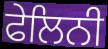
ਫੇਲਿਨੀ